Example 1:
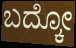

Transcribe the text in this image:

ಬದ್ಕೋ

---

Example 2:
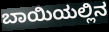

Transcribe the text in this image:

ಬಾಯಿಯಲ್ಲಿನ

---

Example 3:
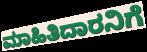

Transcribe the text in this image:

ಮಾಹಿತಿದಾರನಿಗೆ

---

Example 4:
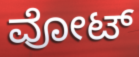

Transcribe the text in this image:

ವೋಟ್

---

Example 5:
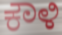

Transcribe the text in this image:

ಕೌಳಿ